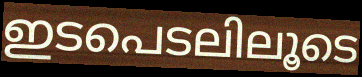
ഇടപെടലിലൂടെ